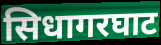
सिधागरघाट